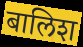
बालिश